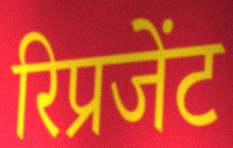
रिप्रजेंट